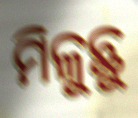
ମିଳୁଛୁ